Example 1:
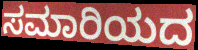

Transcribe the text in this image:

ಸಮಾರಿಯದ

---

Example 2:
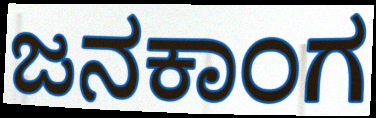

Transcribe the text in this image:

ಜನಕಾಂಗ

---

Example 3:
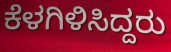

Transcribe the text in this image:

ಕೆಳಗಿಳಿಸಿದ್ದರು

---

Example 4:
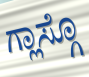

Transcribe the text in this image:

ಗ್ಲಾಸ್ಗೊ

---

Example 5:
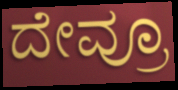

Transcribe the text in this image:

ದೇವ್ರೂ